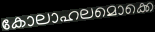
കോലാഹലമൊക്കെ